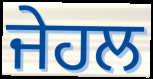
ਜੇਹਲ